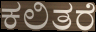
ಕಲಿತರೆ